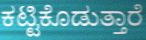
ಕಟ್ಟಿಕೊಡುತ್ತಾರೆ